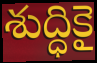
శుద్ధికై